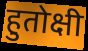
हुतोक्षी